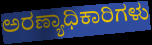
ಅರಣ್ಯಾಧಿಕಾರಿಗಳು